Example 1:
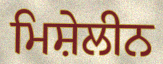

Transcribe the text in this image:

ਮਿਸ਼ੇਲੀਨ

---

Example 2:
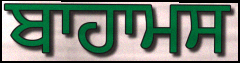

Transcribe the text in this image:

ਬਾਹਾਮਸ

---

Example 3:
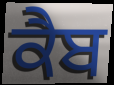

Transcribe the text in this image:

ਕੈਬ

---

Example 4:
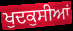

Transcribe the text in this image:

ਖੁਦਕੁਸੀਆਂ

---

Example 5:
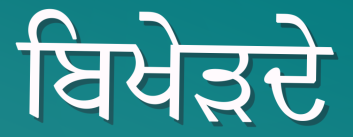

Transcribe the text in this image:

ਬਿਖੇੜਦੇ